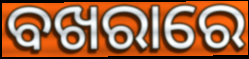
ବଖରାରେ